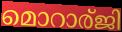
മൊറാര്ജി